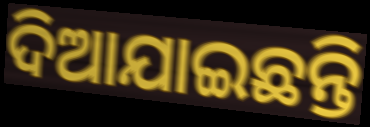
ଦିଆଯାଇଛନ୍ତି